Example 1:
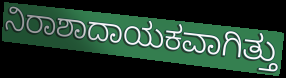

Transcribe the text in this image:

ನಿರಾಶಾದಾಯಕವಾಗಿತ್ತು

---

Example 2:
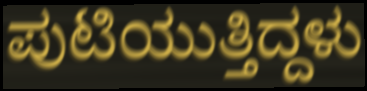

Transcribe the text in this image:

ಪುಟಿಯುತ್ತಿದ್ದಳು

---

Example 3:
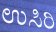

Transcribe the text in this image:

ಉಸಿರಿ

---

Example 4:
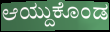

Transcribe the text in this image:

ಆಯ್ದುಕೊಂಡ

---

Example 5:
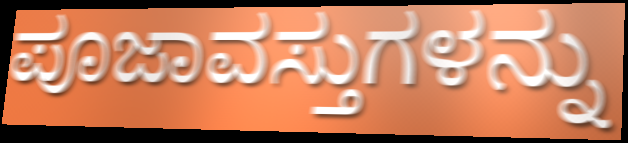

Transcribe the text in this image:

ಪೂಜಾವಸ್ತುಗಳನ್ನು